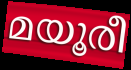
മയൂരീ